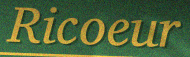
Ricoeur